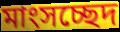
মাংসচ্ছেদ